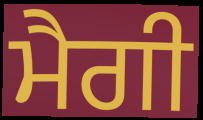
ਮੈਗੀ